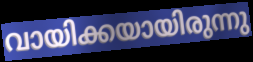
വായിക്കയായിരുന്നു